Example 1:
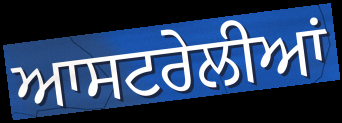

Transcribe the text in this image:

ਆਸਟਰੇਲੀਆਂ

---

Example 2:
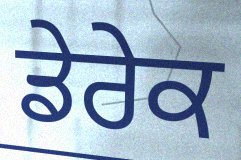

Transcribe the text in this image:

ਡੇਰੇਕ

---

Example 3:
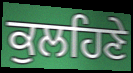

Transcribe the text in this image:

ਕੁਲਹਿਣੇ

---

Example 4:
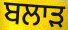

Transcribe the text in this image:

ਬਲਾੜ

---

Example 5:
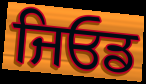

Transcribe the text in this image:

ਜਿਓਡ